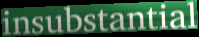
insubstantial